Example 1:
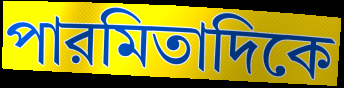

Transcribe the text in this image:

পারমিতাদিকে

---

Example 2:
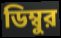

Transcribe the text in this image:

ডিম্বুর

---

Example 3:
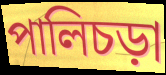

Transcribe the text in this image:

পালিচড়া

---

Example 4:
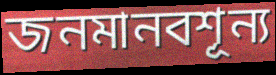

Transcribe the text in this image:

জনমানবশূন্য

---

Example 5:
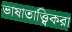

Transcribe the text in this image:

ভাষাতাত্ত্বিকরা